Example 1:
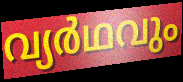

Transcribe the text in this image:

വ്യർഥവും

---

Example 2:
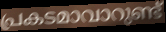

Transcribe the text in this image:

പ്രകടമാവാറുണ്ട്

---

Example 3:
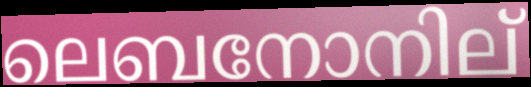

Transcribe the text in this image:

ലെബനോനില്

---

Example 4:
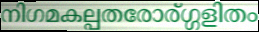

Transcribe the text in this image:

നിഗമകല്പതരോര്ഗ്ഗളിതം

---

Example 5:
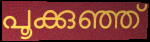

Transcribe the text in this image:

പൂക്കുഞ്ഞ്